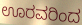
ಊರವರಿಂದ